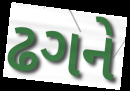
ઢગને